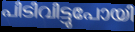
പിടിവിട്ടുപോയി